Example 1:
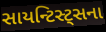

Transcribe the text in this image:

સાયન્ટિસ્ટ્સના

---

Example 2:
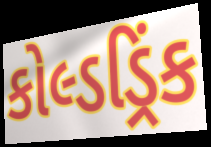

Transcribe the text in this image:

કોલ્ડડ્રિંક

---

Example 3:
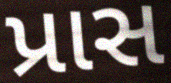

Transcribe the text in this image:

પ્રાસ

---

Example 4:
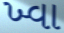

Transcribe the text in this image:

ખ્વા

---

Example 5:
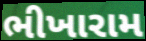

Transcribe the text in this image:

ભીખારામ